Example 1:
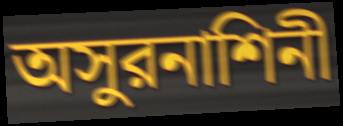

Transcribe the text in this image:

অসুরনাশিনী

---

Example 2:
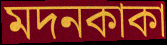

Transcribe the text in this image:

মদনকাকা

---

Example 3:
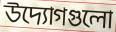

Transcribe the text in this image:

উদ্যোগগুলো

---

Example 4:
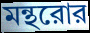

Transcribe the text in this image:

মন্থরোর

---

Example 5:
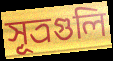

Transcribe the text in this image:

সূত্রগুলি